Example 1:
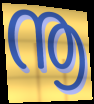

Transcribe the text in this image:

നൂ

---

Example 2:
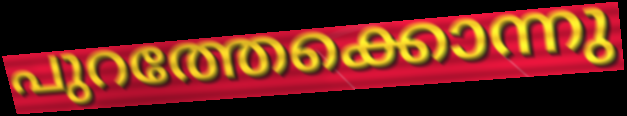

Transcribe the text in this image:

പുറത്തേക്കൊന്നു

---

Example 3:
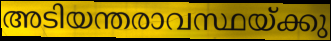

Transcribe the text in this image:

അടിയന്തരാവസ്ഥയ്ക്കു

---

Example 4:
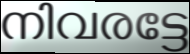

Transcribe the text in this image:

നിവരട്ടേ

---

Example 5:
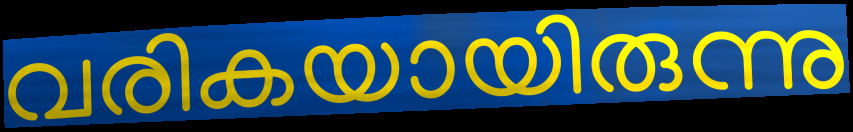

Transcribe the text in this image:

വരികയായിരുന്നു